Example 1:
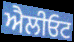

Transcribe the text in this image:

ਐਲੀਓਟ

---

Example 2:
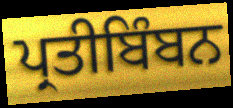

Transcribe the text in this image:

ਪ੍ਰਤੀਬਿੰਬਨ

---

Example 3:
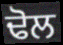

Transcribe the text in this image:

ਢੋਲ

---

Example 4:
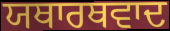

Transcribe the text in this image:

ਯਥਾਰਥਵਾਦ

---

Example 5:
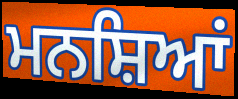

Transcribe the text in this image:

ਮਨਸ਼ਿਆਂ